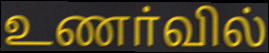
உணர்வில்